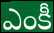
ఎంకీ